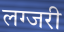
लग्‍जरी